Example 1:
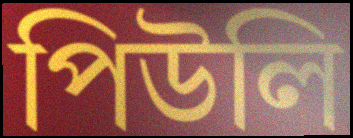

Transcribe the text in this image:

পিউলি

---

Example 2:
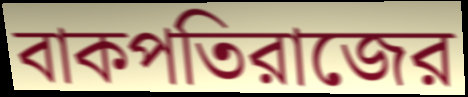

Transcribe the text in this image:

বাকপতিরাজের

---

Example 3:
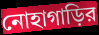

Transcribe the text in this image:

নোহাগাড়ির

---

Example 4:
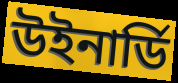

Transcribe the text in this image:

উইনার্ডি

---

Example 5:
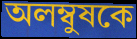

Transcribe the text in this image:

অলম্বুষকে